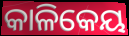
କାଳିକେୟ